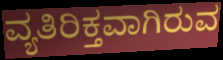
ವ್ಯತಿರಿಕ್ತವಾಗಿರುವ